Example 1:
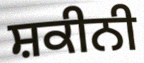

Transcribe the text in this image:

ਸ਼ਕੀਨੀ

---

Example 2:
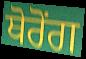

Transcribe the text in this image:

ਥੋਰੋਂਗ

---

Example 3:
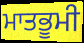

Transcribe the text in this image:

ਮਾਤਭੂਮੀ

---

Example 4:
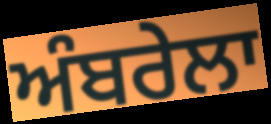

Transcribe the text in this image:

ਅੰਬਰੇਲਾ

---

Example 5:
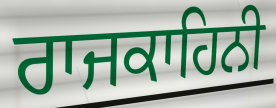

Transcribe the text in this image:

ਰਾਜਕਾਹਿਨੀ